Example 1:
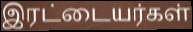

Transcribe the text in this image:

இரட்டையர்கள்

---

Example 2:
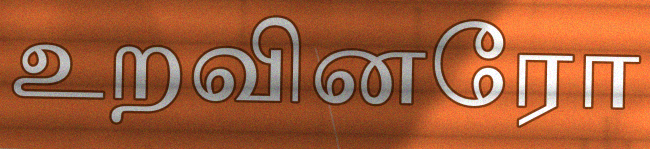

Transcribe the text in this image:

உறவினரோ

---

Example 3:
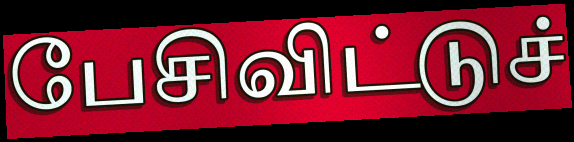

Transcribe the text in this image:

பேசிவிட்டுச்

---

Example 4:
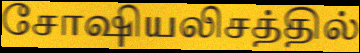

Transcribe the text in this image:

சோஷியலிசத்தில்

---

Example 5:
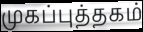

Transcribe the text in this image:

முகப்புத்தகம்